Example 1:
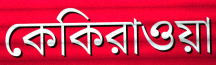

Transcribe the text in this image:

কেকিরাওয়া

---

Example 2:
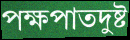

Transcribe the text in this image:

পক্ষপাতদুষ্ট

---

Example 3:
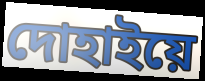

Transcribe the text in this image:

দোহাইয়ে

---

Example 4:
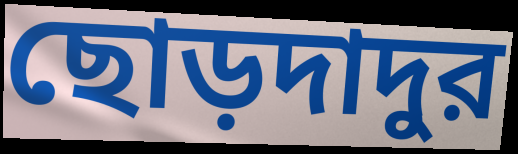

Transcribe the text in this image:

ছোড়দাদুর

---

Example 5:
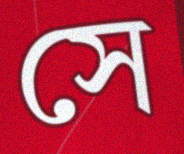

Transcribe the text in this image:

সে